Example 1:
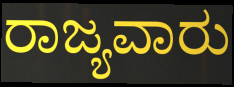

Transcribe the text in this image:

ರಾಜ್ಯವಾರು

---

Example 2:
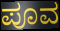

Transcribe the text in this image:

ಪೂವ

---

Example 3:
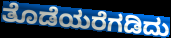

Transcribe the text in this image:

ತೊಡೆಯರೆಗಡಿದು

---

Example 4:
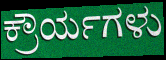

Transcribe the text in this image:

ಕ್ರೌರ್ಯಗಳು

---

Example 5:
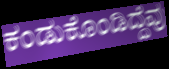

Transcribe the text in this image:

ಕಂಡುಕೊಂಡಿದ್ದೆವು